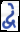
દ્વે